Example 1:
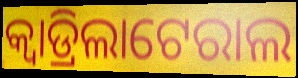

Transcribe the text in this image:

କ୍ୱାଡ୍ରିଲାଟେରାଲ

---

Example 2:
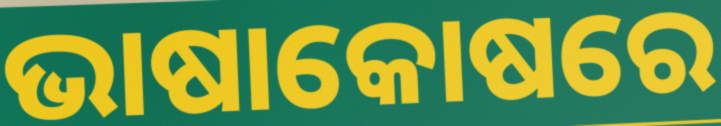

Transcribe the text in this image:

ଭାଷାକୋଷରେ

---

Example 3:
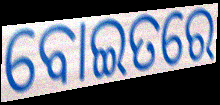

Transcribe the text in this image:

ବୋଇତରେ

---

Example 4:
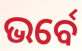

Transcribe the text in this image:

ଭର୍ବେ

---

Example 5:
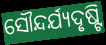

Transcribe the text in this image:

ସୌନ୍ଦର୍ଯ୍ୟଦୃଷ୍ଟି